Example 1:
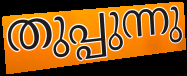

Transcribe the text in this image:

തുപ്പുന്നു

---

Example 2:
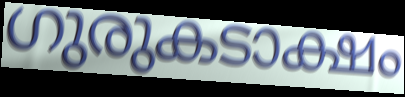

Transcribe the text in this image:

ഗുരുകടാക്ഷം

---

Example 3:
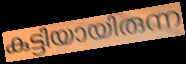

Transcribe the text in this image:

കുട്ടിയായിരുന്ന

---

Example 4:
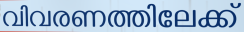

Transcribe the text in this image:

വിവരണത്തിലേക്ക്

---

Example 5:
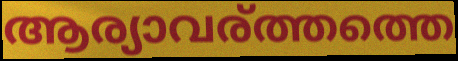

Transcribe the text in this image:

ആര്യാവര്ത്തത്തെ